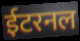
ईटरनल